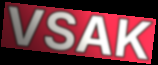
VSAK